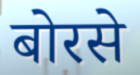
बोरसे